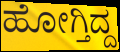
ಹೋಗ್ತಿದ್ದ